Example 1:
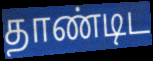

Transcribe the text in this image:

தாண்டிட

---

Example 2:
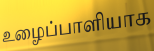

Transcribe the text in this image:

உழைப்பாளியாக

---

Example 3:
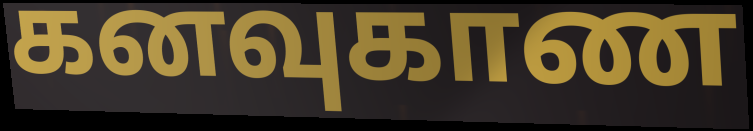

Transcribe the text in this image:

கனவுகாண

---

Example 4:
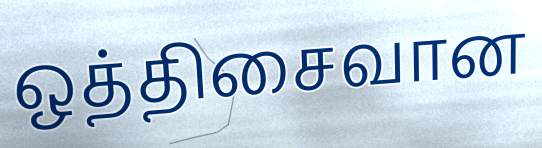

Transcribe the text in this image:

ஒத்திசைவான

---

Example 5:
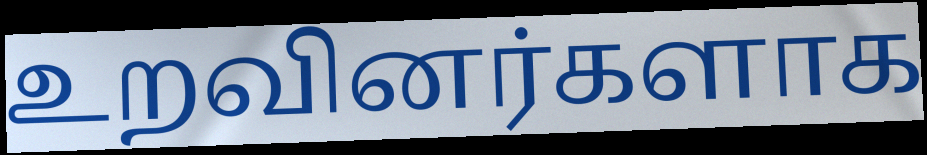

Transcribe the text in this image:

உறவினர்களாக